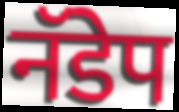
नॅडेप